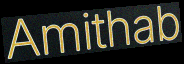
Amithab